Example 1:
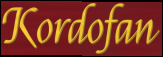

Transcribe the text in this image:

Kordofan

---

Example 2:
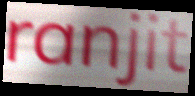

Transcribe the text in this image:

ranjit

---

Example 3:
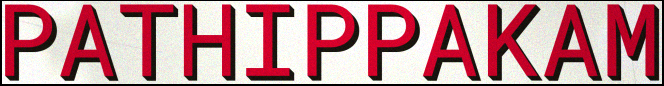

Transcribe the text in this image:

PATHIPPAKAM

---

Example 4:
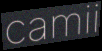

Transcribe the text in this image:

camii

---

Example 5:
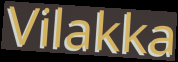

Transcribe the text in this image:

Vilakka